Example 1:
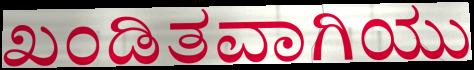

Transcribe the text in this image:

ಖಂಡಿತವಾಗಿಯು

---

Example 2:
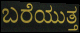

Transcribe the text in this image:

ಬರೆಯುತ್ತ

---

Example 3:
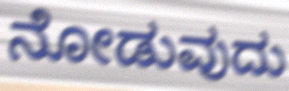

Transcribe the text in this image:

ನೋಡುವುದು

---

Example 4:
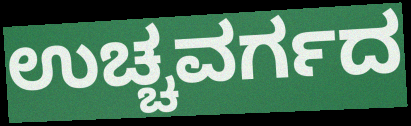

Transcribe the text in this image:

ಉಚ್ಚವರ್ಗದ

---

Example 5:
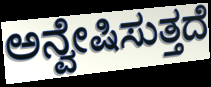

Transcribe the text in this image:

ಅನ್ವೇಷಿಸುತ್ತದೆ